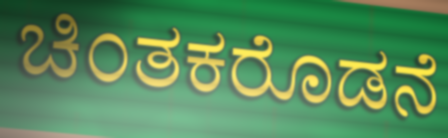
ಚಿಂತಕರೊಡನೆ